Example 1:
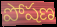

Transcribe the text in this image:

పోషణ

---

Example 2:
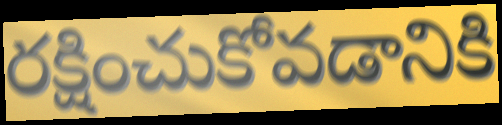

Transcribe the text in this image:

రక్షించుకోవడానికి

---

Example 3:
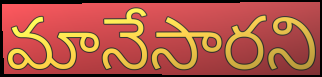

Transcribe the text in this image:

మానేసారని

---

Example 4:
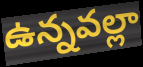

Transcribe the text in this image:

ఉన్నవల్లా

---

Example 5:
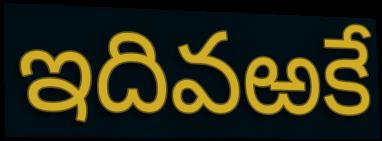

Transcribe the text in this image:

ఇదివఱకే